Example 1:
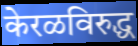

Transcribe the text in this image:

केरळविरुद्ध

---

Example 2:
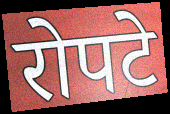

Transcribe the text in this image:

रोपटे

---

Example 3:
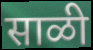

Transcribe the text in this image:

साळी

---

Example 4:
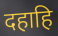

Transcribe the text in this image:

दहाहि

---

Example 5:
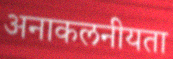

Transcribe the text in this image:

अनाकलनीयता